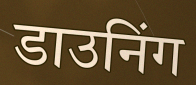
डाउनिंग